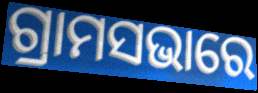
ଗ୍ରାମସଭାରେ